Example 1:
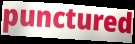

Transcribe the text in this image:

punctured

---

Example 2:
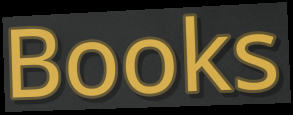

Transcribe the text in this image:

Books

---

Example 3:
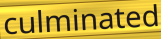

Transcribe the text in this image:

culminated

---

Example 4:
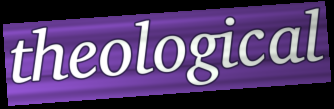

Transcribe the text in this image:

theological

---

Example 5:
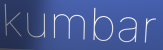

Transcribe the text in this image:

kumbar